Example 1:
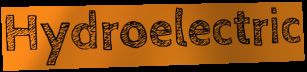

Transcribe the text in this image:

Hydroelectric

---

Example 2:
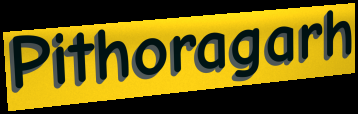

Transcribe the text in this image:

Pithoragarh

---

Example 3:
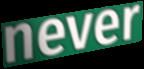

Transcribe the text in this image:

never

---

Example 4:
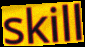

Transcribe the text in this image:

skill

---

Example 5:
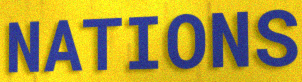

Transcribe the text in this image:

NATIONS